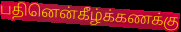
பதினென்கீழ்க்கணக்கு